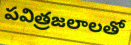
పవిత్రజలాలతో